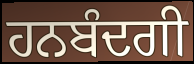
ਹਨਬੰਦਗੀ